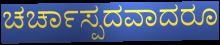
ಚರ್ಚಾಸ್ಪದವಾದರೂ